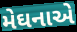
મેઘનાએ